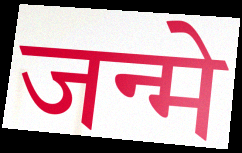
जन्मे